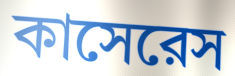
কাসেরেস